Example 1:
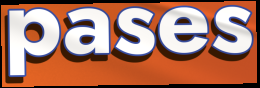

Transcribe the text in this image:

pases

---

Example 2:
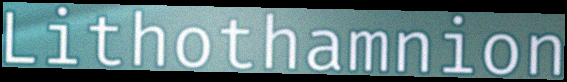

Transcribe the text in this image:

Lithothamnion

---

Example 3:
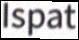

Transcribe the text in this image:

Ispat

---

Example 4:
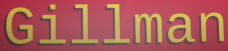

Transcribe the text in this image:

Gillman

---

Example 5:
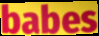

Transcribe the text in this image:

babes